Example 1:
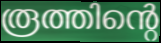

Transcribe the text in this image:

രൂത്തിന്റെ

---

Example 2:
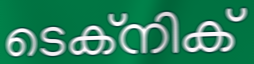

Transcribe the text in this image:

ടെക്നിക്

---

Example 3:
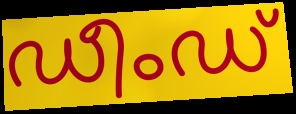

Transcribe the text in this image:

ഡീംഡ്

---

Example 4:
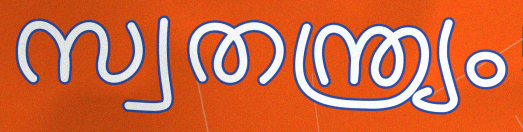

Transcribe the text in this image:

സ്വതന്ത്ര്യം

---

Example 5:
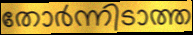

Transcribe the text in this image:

തോർന്നിടാത്ത